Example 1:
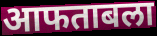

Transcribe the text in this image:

आफताबला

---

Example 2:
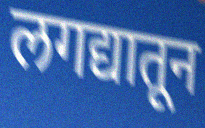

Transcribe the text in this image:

लगद्यातून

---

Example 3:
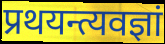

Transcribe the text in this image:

प्रथयन्त्यवज्ञां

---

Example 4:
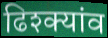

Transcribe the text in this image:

ढिश्क्यांव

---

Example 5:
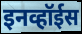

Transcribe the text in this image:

इनव्हॉईस